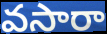
వసారా